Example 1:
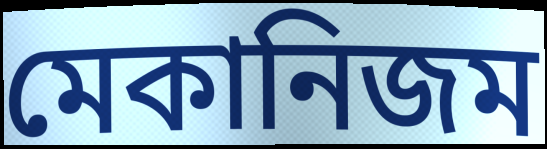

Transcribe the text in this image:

মেকানিজম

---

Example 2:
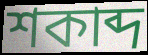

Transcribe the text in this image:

শকাব্দ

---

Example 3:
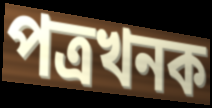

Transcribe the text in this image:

পত্ৰখনক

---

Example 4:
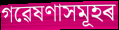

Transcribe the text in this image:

গৱেষণাসমূহৰ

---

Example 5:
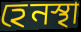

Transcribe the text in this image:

হেনস্থা